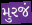
મુરજં